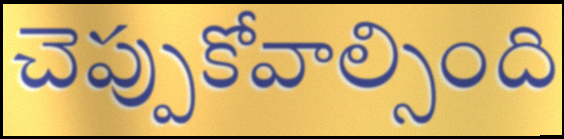
చెప్పుకోవాల్సింది